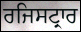
ਰਜਿਸਟ੍ਰਾਰ